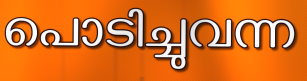
പൊടിച്ചുവന്ന